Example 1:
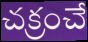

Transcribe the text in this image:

చక్రంచే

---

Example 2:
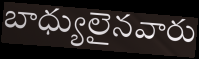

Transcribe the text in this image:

బాధ్యులైనవారు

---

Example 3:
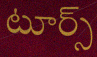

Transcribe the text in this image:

టూర్స్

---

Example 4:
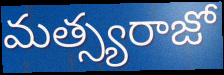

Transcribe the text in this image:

మత్స్యరాజో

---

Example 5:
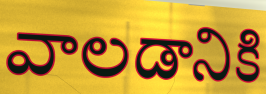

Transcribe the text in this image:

వాలడానికి